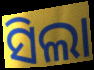
ସିଲା